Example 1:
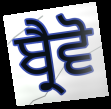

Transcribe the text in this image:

ਬ੍ਰੈਵੋ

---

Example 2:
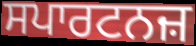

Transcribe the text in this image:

ਸਪਾਰਟਨਜ਼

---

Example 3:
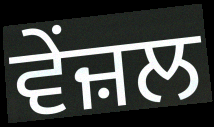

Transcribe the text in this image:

ਵੇਂਜ਼ਲ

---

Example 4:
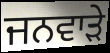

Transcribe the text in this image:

ਜਨਵਾੜੇ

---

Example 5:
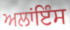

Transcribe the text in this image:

ਅਲਾਂਇੰਸ